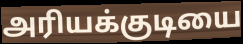
அரியக்குடியை